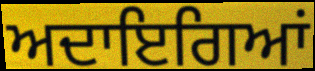
ਅਦਾਇਗਿਆਂ